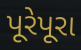
પૂરેપૂરા